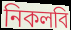
নিকলবি